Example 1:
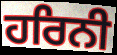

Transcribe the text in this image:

ਹਰਿਨੀ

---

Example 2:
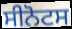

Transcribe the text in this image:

ਸੀਨੋਟਸ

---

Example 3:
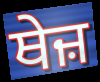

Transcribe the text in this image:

ਥੇਜ਼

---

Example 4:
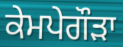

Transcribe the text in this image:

ਕੇਮਪੇਗੌੜਾ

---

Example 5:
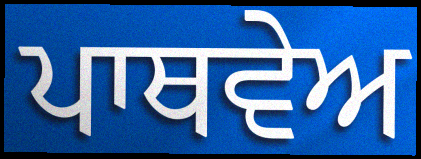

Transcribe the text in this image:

ਪਾਥਵੇਅ